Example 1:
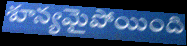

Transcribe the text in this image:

శూన్యమైపోయింది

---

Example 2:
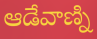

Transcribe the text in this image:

ఆడేవాణ్ని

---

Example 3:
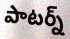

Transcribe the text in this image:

పాటర్న్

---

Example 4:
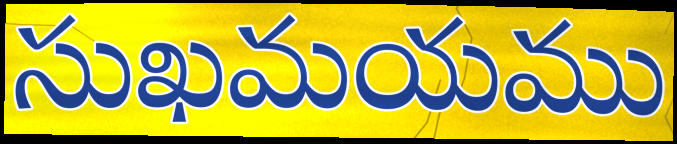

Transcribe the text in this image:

సుఖమయము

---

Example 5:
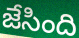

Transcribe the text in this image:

జేసింది